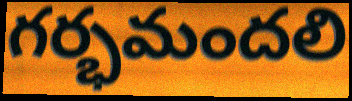
గర్భమందలి